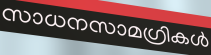
സാധനസാമഗ്രികൾ